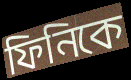
ফিনিকে